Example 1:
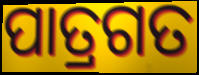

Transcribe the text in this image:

ପାତ୍ରଗତ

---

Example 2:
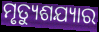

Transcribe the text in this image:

ମୃତ୍ୟୁଶଯ୍ୟାର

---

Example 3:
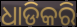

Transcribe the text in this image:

ଧାଡିକରି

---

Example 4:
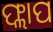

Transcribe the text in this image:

ଫ୍ଲାପ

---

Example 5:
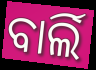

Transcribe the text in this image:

ବାର୍ଲି